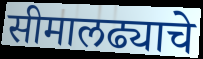
सीमालढ्याचे